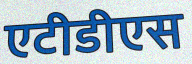
एटीडीएस